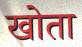
खोता